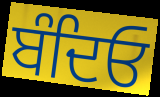
ਬੰਦਿਓ